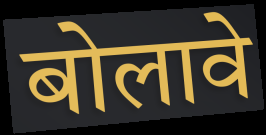
बोलावे